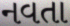
નવતા